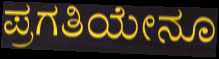
ಪ್ರಗತಿಯೇನೂ